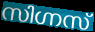
സിഗ്നസ്